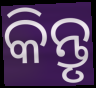
କିନ୍ତୃ